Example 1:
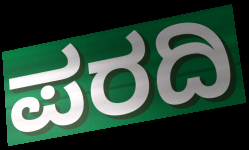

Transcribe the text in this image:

ಪರದಿ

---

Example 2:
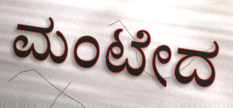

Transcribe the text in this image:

ಮಂಟೇದ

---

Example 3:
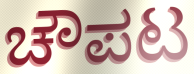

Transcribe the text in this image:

ಚೌಪಟ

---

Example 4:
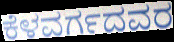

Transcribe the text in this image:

ಕೆಳವರ್ಗದವರ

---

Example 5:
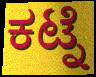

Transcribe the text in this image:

ಕಟ್ನೆ